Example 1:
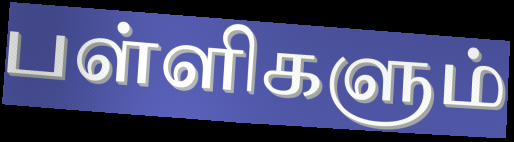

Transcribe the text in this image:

பள்ளிகளும்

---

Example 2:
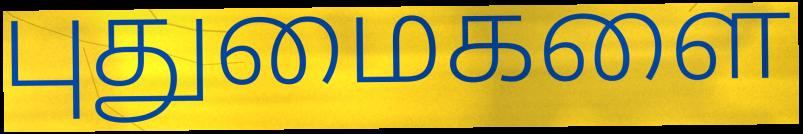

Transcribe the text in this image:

புதுமைகளை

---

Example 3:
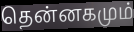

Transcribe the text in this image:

தென்னகமும்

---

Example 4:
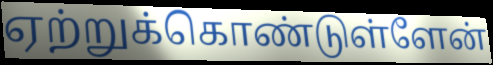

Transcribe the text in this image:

ஏற்றுக்கொண்டுள்ளேன்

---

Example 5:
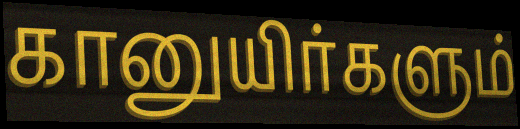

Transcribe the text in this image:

கானுயிர்களும்